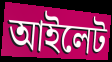
আইলেট